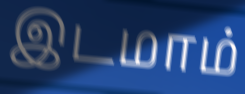
இடமாம்